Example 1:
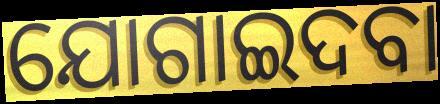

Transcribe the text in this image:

ଯୋଗାଇଦବା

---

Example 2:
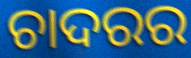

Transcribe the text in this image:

ଚାଦରର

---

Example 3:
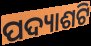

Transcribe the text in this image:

ପଦ୍ୟାଶଟି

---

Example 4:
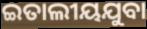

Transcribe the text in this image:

ଇତାଲୀୟଯୁବା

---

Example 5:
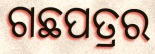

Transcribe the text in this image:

ଗଛପତ୍ରର